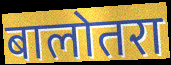
बालोतरा